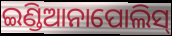
ଇଣ୍ଡିଆନାପୋଲିସ୍